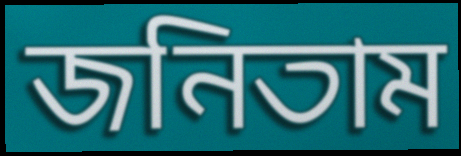
জনিতাম